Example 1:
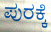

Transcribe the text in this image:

ಪುರಕ್ಕೆ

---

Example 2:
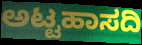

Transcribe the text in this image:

ಅಟ್ಟಹಾಸದಿ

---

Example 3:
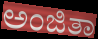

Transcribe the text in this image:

ಅಂಜಿತಾ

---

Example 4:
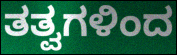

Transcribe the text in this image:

ತತ್ವಗಳಿಂದ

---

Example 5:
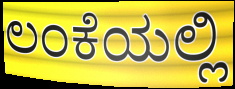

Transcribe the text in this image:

ಲಂಕೆಯಲ್ಲಿ